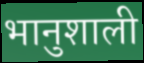
भानुशाली